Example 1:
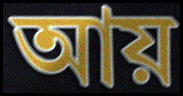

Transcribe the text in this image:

আয়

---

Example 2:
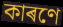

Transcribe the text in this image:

কাৰণে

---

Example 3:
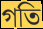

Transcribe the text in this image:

গতি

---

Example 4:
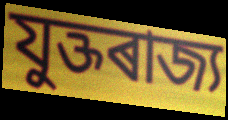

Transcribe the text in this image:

যুক্তৰাজ্য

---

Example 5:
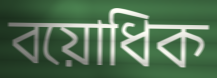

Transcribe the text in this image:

বয়োধিক